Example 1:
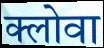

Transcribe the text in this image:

क्लोवा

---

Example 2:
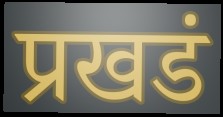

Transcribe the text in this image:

प्रखडं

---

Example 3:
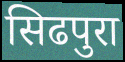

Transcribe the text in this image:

सिढपुरा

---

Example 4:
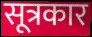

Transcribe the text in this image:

सूत्रकार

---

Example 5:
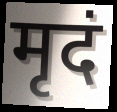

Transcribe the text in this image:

मृदं